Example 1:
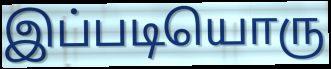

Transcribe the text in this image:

இப்படியொரு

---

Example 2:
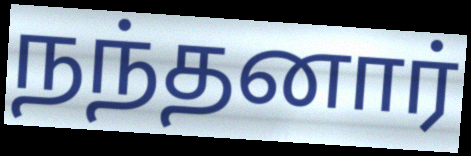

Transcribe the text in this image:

நந்தனார்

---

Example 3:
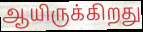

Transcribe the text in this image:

ஆயிருக்கிறது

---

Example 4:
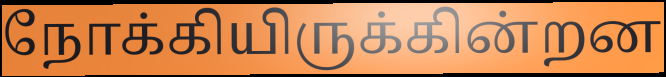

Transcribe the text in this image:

நோக்கியிருக்கின்றன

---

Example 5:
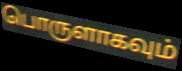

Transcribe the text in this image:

பொருளாகவும்